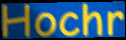
Hochr